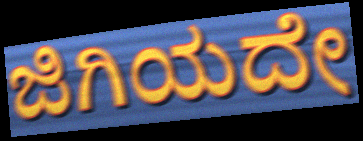
ಜಿಗಿಯದೇ